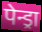
पेन्ड्रा